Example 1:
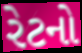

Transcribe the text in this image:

રેટનો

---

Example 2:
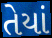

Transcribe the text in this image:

તેયાં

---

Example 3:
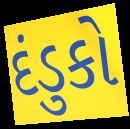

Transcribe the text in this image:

દંડુકો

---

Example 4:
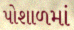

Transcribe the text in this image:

પોશાળમાં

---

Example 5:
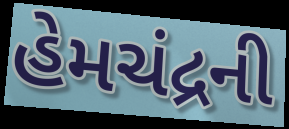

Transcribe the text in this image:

હેમચંદ્રની